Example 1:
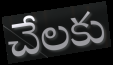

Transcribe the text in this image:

చేలకు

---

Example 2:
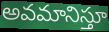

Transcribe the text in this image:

అవమానిస్తూ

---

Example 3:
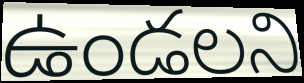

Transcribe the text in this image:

ఉండలని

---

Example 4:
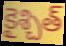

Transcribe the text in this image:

కైశ్చిత్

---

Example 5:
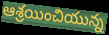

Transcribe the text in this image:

ఆశ్రయించియున్న